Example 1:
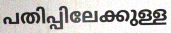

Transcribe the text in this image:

പതിപ്പിലേക്കുള്ള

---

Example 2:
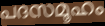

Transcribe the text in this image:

പദസമൂഹം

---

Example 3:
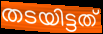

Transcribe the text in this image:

തടയിട്ടത്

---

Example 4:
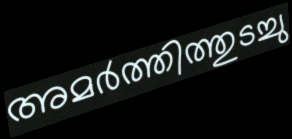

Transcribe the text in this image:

അമർത്തിത്തുടച്ചു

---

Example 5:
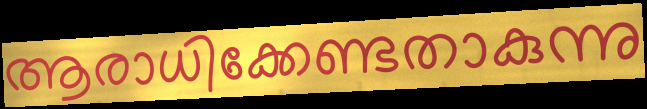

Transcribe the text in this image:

ആരാധിക്കേണ്ടതാകുന്നു